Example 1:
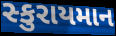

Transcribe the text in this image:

સ્કુરાયમાન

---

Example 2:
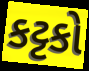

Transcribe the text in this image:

કટ્ટકો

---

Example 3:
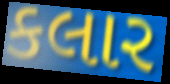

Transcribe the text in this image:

કલાર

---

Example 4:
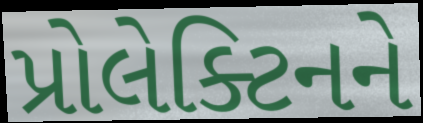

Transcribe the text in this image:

પ્રોલેક્ટિનને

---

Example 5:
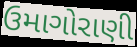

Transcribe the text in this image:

ઉમાગોરાણી